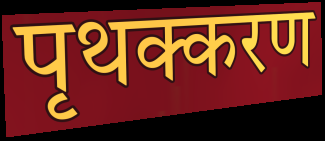
पृथक्करण